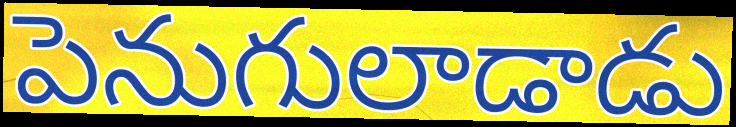
పెనుగులాడాడు